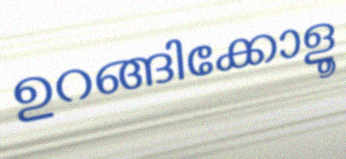
ഉറങ്ങിക്കോളൂ